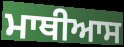
ਮਾਥੀਆਸ